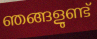
ഞങ്ങളുണ്ട്